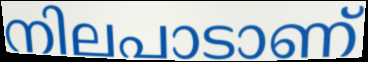
നിലപാടാണ്